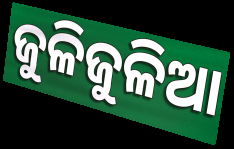
ଜୁଳିଜୁଳିଆ